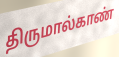
திருமால்காண்